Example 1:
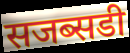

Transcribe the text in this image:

सजब्सडी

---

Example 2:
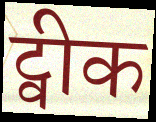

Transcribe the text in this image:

ट्वीक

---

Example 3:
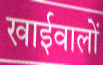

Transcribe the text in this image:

खाईवालों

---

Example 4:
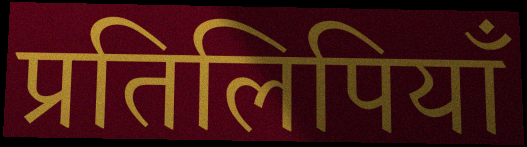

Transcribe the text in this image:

प्रतिलिपियाँ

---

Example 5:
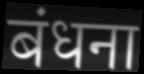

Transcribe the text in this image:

बंधना